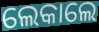
ଲେକାଲେ